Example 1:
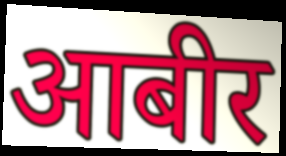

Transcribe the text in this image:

आबीर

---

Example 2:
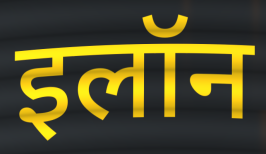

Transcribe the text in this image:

इलॉन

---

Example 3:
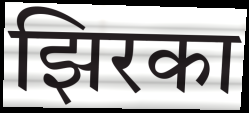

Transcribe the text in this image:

झिरका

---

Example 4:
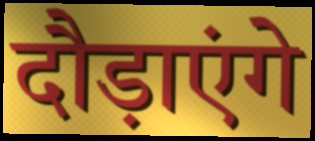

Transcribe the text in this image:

दौड़ाएंगे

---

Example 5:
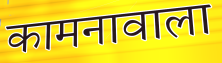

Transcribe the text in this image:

कामनावाला